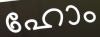
ഹോം